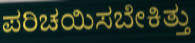
ಪರಿಚಯಿಸಬೇಕಿತ್ತು